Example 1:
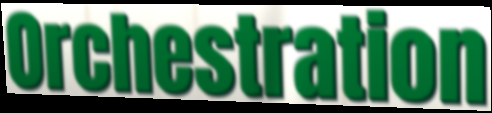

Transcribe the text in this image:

Orchestration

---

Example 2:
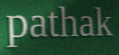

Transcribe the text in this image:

pathak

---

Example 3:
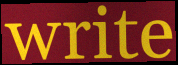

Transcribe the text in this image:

write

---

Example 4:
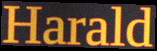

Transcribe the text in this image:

Harald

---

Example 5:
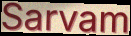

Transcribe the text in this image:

Sarvam